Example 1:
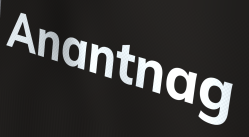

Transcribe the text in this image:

Anantnag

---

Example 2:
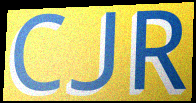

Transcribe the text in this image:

CJR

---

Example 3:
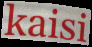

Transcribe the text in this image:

kaisi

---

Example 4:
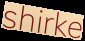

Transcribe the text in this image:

shirke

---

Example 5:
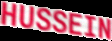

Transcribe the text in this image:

HUSSEIN